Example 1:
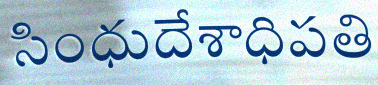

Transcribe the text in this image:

సింధుదేశాధిపతి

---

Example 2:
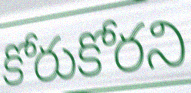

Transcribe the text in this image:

కోరుకోరని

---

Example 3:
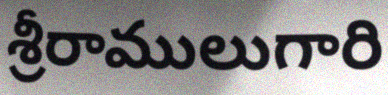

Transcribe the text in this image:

శ్రీరాములుగారి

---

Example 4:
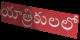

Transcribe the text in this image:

యాత్రికులలో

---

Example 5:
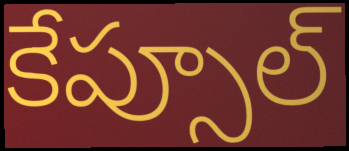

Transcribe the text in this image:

కేప్సూల్